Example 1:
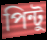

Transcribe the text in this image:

পিন্টু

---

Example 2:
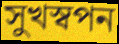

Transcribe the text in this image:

সুখস্বপন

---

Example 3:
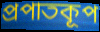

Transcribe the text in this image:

প্রপাতকূপ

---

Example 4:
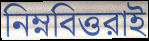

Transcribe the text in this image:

নিম্নবিত্তরাই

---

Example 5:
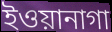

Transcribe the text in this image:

ইওয়ানাগা